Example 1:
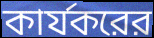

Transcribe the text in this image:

কার্যকরের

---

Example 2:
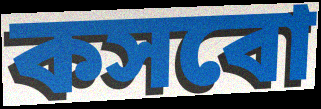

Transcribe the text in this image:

কসবো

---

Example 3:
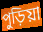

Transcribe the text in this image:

পুড়িয়া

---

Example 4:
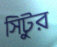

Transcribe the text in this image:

সিটুর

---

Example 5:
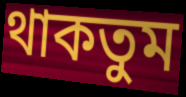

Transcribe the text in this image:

থাকতুম